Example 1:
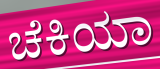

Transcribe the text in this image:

ಚೆಕಿಯಾ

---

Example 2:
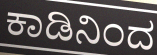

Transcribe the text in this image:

ಕಾಡಿನಿಂದ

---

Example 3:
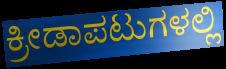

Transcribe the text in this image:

ಕ್ರೀಡಾಪಟುಗಳಲ್ಲಿ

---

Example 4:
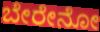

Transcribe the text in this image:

ಬೇರೇನೋ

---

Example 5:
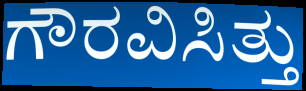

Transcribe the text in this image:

ಗೌರವಿಸಿತ್ತು